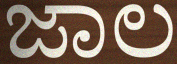
ಜಾಲ